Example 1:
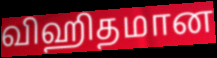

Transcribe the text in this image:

விஹிதமான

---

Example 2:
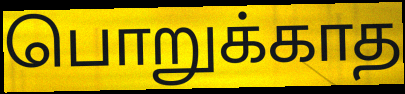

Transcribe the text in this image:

பொறுக்காத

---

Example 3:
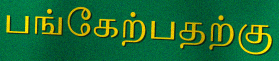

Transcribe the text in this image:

பங்கேற்பதற்கு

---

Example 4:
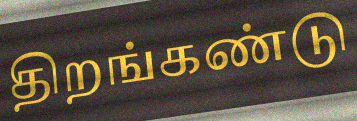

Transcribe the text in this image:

திறங்கண்டு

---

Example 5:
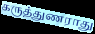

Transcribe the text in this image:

கருத்துணராது